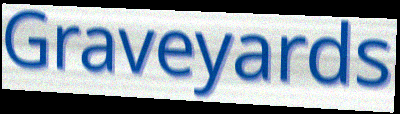
Graveyards